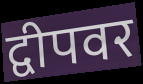
द्वीपवर